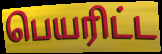
பெயரிட்ட